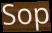
Sop